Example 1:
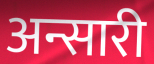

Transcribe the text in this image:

अन्सारी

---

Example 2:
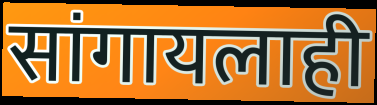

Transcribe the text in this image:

सांगायलाही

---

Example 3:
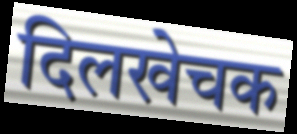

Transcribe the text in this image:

दिलखेचक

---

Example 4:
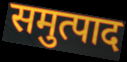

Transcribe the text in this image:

समुत्पाद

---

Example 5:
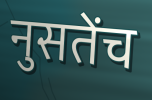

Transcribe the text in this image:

नुसतेंच